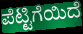
ಪೆಟ್ಟಿಗೆಯಿದೆ